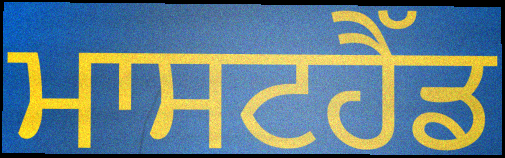
ਮਾਸਟਹੈੱਡ